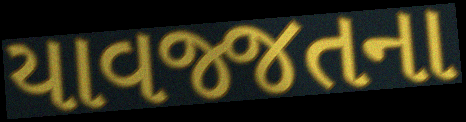
યાવજ્જતના